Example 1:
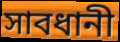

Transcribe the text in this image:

সাবধানী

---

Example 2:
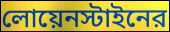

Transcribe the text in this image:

লোয়েনস্টাইনের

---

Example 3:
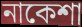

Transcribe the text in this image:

নাকেশা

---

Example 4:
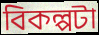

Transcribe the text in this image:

বিকল্পটা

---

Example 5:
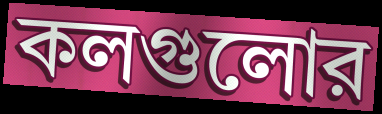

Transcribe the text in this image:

কলগুলোর